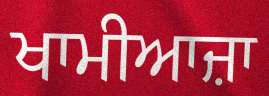
ਖਾਮੀਆਜ਼ਾ